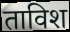
ताविश